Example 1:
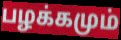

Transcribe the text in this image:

பழக்கமும்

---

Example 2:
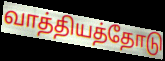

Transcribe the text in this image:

வாத்தியத்தோடு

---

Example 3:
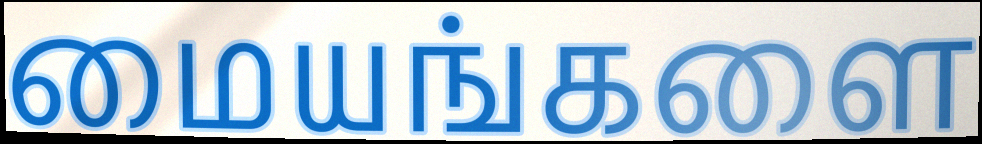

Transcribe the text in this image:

மையங்களை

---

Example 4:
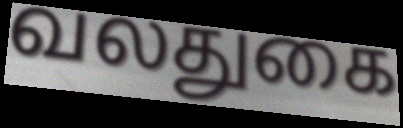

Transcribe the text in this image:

வலதுகை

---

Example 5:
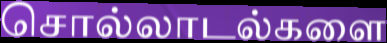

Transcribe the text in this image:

சொல்லாடல்களை